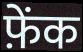
फ़ेंक